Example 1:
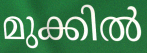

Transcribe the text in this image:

മുക്കിൽ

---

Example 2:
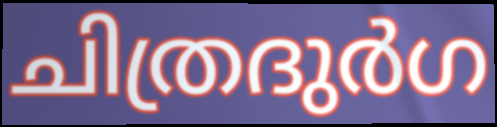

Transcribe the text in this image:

ചിത്രദുർഗ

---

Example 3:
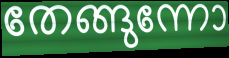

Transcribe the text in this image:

തേങ്ങുന്നോ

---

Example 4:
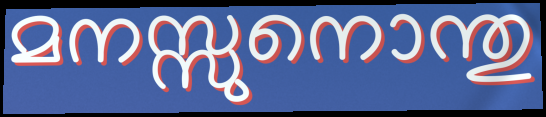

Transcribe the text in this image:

മനസ്സുനൊന്തു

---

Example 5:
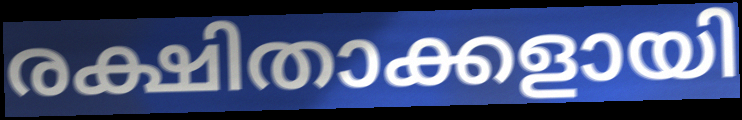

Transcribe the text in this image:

രക്ഷിതാക്കളായി